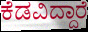
ಕೆಡವಿದ್ದಾರೆ